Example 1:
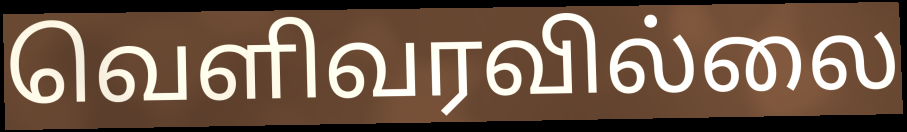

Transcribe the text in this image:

வெளிவரவில்லை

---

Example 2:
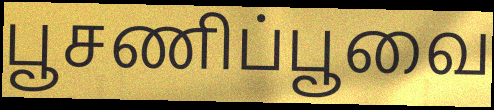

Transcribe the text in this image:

பூசணிப்பூவை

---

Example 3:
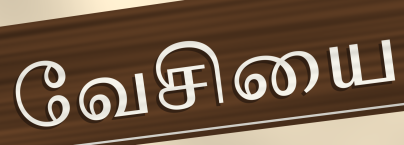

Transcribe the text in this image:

வேசியை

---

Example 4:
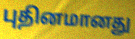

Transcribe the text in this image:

புதினமானது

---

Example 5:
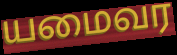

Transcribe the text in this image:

யமைவர